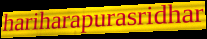
hariharapurasridhar